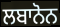
ਲਬਾਨੋਨ